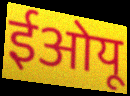
ईओयू